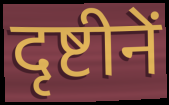
दृष्टीनें